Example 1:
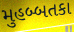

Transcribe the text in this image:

મુહબ્બતકા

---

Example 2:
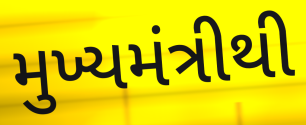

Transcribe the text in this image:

મુખ્યમંત્રીથી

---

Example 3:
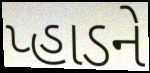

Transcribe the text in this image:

પ્હાડને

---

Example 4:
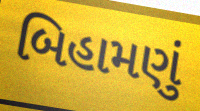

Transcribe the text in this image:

બિહામણું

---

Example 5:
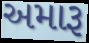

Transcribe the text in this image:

અમારૂ